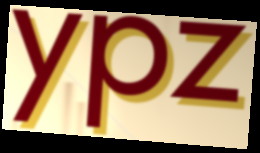
ypz